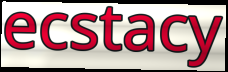
ecstacy